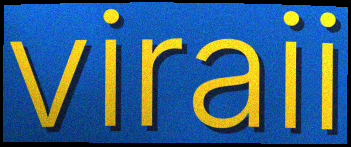
viraii